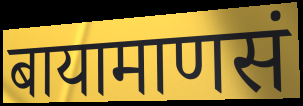
बायामाणसं